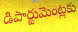
డిపార్టుమెంట్లకు